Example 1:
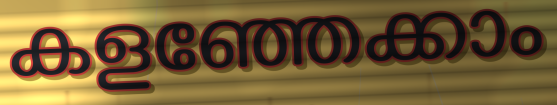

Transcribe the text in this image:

കളഞ്ഞേക്കാം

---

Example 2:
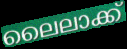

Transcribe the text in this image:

ലൈലാക്ക്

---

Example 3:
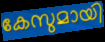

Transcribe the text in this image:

കേസുമായി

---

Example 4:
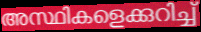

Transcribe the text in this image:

അസ്ഥികളെക്കുറിച്ച്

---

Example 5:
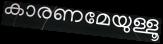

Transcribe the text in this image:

കാരണമേയുള്ളൂ